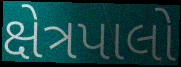
ક્ષેત્રપાલો